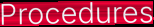
Procedures